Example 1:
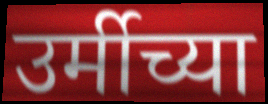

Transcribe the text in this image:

उर्मीच्या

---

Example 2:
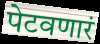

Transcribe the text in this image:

पेटवणारं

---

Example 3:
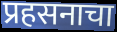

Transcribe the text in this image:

प्रहसनाचा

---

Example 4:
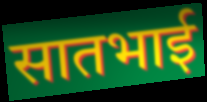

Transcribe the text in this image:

सातभाई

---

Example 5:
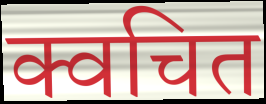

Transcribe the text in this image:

क्वचित